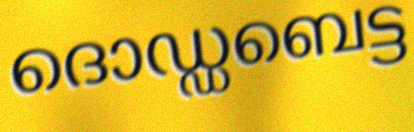
ദൊഡ്ഡബെട്ട